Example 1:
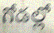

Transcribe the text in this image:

గోడల్లో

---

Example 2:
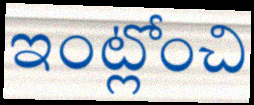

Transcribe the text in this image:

ఇంట్లోంచి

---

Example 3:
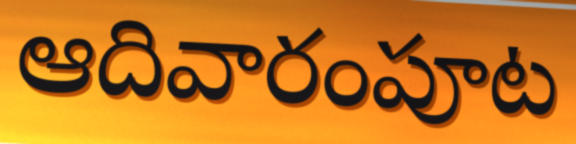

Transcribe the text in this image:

ఆదివారంపూట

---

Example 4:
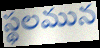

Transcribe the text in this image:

స్థలమున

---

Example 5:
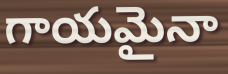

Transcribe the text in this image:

గాయమైనా